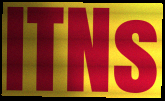
ITNs